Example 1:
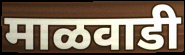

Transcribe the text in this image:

माळवाडी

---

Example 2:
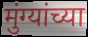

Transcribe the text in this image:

मुंग्यांच्या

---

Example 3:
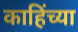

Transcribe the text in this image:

काहिंच्या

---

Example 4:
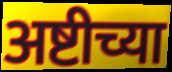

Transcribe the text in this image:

अष्टीच्या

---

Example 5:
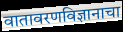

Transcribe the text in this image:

वातावरणविज्ञानाचा